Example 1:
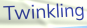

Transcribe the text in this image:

Twinkling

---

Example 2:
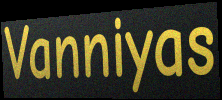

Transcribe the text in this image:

Vanniyas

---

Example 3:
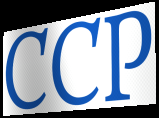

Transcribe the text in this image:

CCP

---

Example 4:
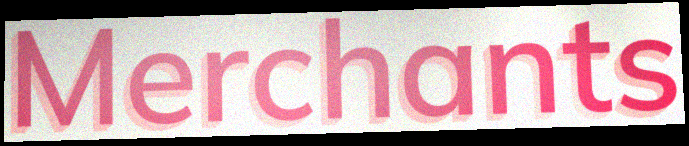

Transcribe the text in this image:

Merchants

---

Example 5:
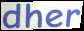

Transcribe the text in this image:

dher